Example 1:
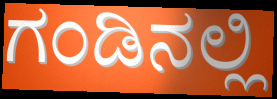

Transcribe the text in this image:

ಗಂಡಿನಲ್ಲಿ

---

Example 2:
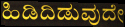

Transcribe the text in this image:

ಹಿಡಿದಿಡುವುದೇ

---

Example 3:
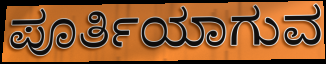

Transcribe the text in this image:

ಪೂರ್ತಿಯಾಗುವ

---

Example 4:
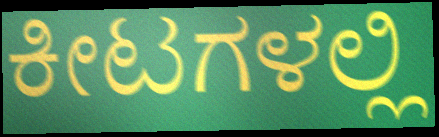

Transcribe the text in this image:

ಕೀಟಗಳಲ್ಲಿ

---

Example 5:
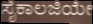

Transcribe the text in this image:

ಸೈಕಾಲಜಿಯೇ